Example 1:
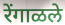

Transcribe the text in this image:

रेंगाळले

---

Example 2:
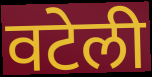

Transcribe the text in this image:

वटेली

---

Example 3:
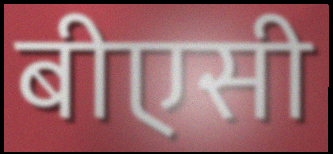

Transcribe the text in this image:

बीएसी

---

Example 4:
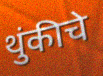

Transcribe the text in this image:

थुंकीचे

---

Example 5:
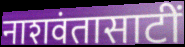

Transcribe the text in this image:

नाशवंतासाटीं